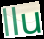
llu